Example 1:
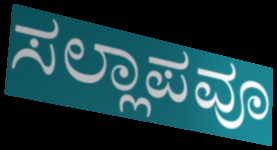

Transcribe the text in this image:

ಸಲ್ಲಾಪವೂ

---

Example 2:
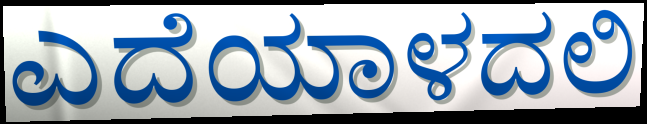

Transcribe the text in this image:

ಎದೆಯಾಳದಲಿ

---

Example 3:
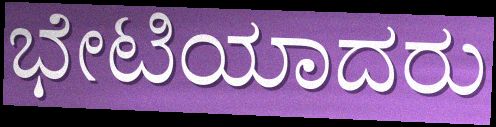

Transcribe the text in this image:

ಭೇಟಿಯಾದರು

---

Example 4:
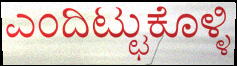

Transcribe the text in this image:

ಎಂದಿಟ್ಟುಕೊಳ್ಳಿ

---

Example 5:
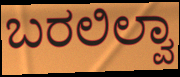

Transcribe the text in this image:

ಬರಲಿಲ್ವಾ